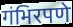
गंभिरपणे